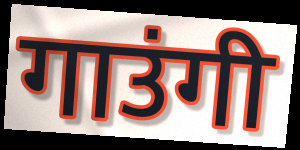
गाउंगी